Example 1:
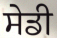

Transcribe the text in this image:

ਸੇਡੀ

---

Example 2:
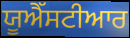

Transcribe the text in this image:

ਯੂਐੱਸਟੀਆਰ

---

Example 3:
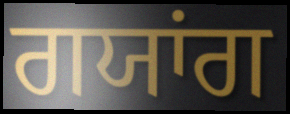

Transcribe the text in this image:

ਗਯਾਂਗ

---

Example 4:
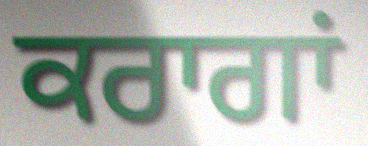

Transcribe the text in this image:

ਕਰਾਗਾਂ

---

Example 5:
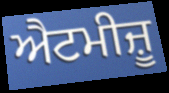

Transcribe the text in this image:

ਐਟਮੀਜ਼ੂ